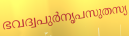
ഭവദ്വപുർനൃപസുതസ്യ